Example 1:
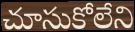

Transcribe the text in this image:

చూసుకోలేని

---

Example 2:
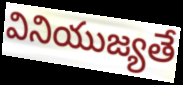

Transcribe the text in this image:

వినియుజ్యతే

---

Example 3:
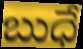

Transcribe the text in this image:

బుధే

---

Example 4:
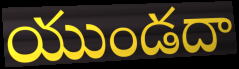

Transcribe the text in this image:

యుండదా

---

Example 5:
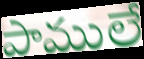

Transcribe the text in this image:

పాములే